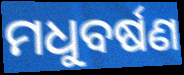
ମଧୁବର୍ଷଣ